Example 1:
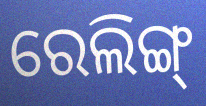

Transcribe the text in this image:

ରେଲିଙ୍ଗ୍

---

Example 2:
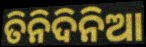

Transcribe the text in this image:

ତିନିଦିନିଆ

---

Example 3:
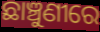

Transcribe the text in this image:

ଛାଞ୍ଚୁଣୀରେ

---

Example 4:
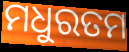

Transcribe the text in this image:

ମଧୁରତମ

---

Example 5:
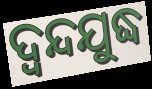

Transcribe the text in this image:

ଦ୍ୱନ୍ଦଯୁଦ୍ଧ